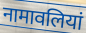
नामावलियां